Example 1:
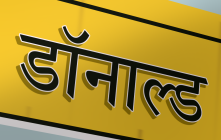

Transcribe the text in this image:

डॉनाल्ड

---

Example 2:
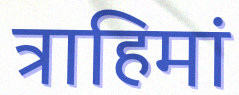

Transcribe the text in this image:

त्राहिमां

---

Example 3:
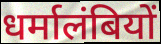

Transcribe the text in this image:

धर्मालंबियों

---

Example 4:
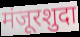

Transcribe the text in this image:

मंजूरशुदा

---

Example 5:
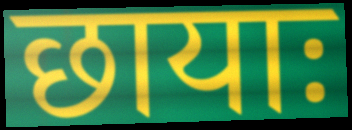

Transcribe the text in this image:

छायाः